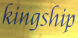
kingship